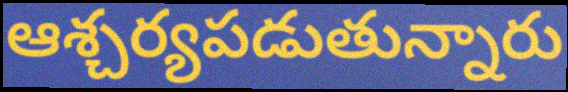
ఆశ్చర్యపడుతున్నారు